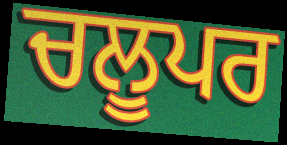
ਚਲੂਪਰ